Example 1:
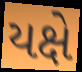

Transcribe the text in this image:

યક્ષે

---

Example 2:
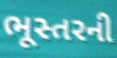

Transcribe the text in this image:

ભૂસ્તરની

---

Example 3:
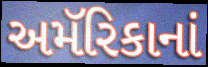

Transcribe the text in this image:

અમૅરિકાનાં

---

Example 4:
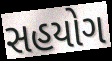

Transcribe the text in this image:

સહયોગ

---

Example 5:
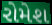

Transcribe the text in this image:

રોમેશ